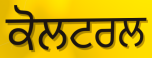
ਕੋਲਟਰਲ